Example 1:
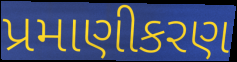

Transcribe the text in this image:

પ્રમાણીકરણ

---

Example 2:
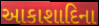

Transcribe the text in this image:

આકાશાદિના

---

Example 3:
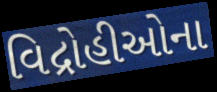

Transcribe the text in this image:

વિદ્રોહીઓના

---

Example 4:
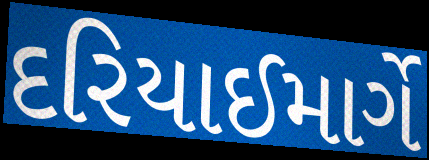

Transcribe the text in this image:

દરિયાઈમાર્ગે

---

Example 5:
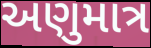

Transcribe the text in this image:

અણુમાત્ર